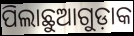
ପିଲାଛୁଆଗୁଡ଼ାକ